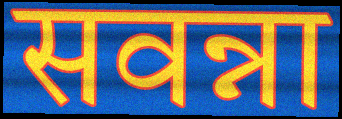
सवन्ना